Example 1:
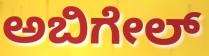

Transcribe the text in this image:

ಅಬಿಗೇಲ್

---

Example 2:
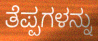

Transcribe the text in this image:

ತೆಪ್ಪಗಳನ್ನು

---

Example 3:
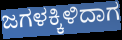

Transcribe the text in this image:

ಜಗಳಕ್ಕಿಳಿದಾಗ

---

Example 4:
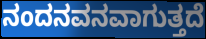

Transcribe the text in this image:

ನಂದನವನವಾಗುತ್ತದೆ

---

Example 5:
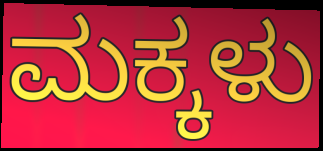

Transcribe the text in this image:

ಮಕ್ಕಳು